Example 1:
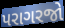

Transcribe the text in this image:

પરાગરજો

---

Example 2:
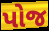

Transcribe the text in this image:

પોજ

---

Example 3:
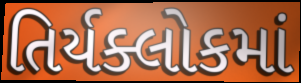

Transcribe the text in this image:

તિર્યક્લોકમાં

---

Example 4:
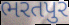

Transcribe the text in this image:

ભરતપુર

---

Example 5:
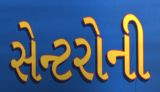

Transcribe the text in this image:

સેન્ટરોની